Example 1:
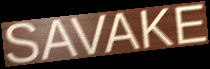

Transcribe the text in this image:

SAVAKE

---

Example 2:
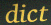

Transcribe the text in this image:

dict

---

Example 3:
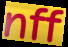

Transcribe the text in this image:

nff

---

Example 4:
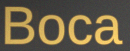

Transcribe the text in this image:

Boca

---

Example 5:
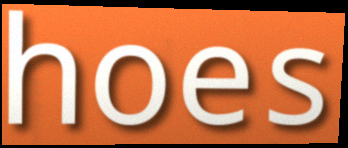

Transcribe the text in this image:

hoes